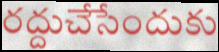
రద్దుచేసేందుకు